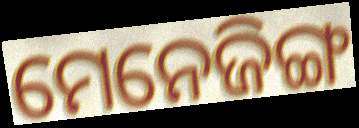
ମେନେଜିଙ୍ଗ